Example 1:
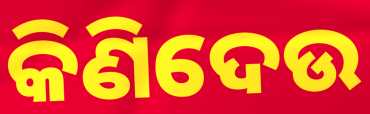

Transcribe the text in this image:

କିଣିଦେଉ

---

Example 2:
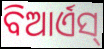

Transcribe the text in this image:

ବିଆର୍ଏସ୍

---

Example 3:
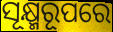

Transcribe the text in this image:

ସୂକ୍ଷ୍ମରୂପରେ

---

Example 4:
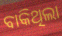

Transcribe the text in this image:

ବାକିଥିଲା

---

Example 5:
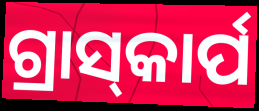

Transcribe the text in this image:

ଗ୍ରାସ୍‌କାର୍ପ